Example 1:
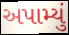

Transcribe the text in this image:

અપામ્યું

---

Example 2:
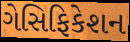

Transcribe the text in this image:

ગેસિફિકેશન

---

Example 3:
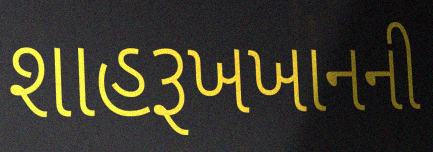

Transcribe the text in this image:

શાહરૂખખાનની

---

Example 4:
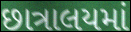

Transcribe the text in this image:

છાત્રાલયમાં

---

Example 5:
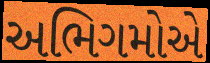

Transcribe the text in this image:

અભિગમોએ